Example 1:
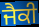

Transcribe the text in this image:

ਜੈਕੀ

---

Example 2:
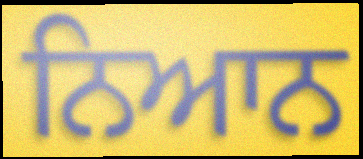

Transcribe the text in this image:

ਨਿਆਨ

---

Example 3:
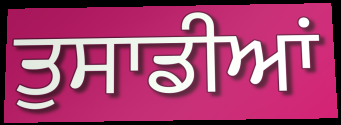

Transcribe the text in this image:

ਤੁਸਾਡੀਆਂ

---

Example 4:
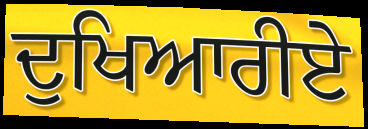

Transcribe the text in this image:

ਦੁਖਿਆਰੀਏ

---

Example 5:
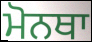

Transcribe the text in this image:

ਮੋਨਥਾ